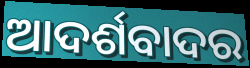
ଆଦର୍ଶବାଦର